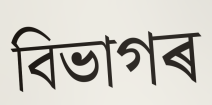
বিভাগৰ